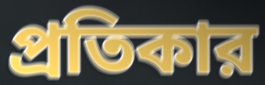
প্রতিকার